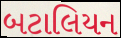
બટાલિયન